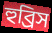
হুব্রিস